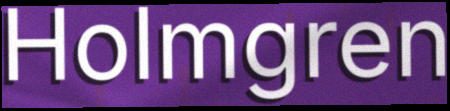
Holmgren